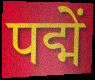
पद्में